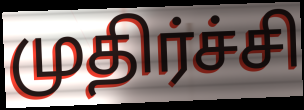
முதிர்ச்சி